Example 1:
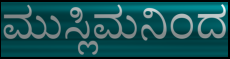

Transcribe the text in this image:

ಮುಸ್ಲಿಮನಿಂದ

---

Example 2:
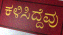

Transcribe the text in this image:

ಕಳಿಸಿದ್ದೆವು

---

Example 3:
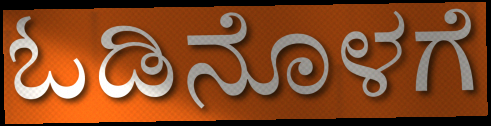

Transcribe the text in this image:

ಓಡಿನೊಳಗೆ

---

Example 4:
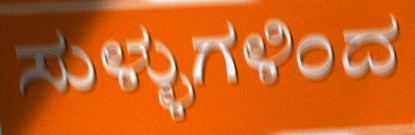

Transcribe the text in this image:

ಸುಳ್ಳುಗಳಿಂದ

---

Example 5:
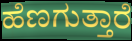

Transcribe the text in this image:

ಹೆಣಗುತ್ತಾರೆ